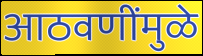
आठवणींमुळे